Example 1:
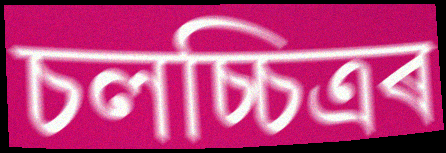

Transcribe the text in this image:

চলচ্চিত্ৰৰ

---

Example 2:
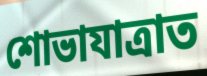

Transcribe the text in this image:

শোভাযাত্ৰাত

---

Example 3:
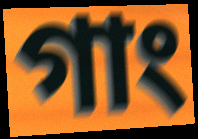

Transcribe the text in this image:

গাং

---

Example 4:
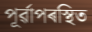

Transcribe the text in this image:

পূৰ্ৱাপৰস্থিত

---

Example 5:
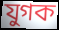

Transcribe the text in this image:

যুগক